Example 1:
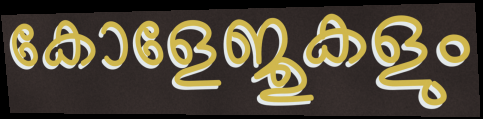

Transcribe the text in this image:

കോളേജുകളും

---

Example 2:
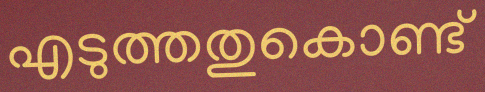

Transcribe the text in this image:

എടുത്തതുകൊണ്ട്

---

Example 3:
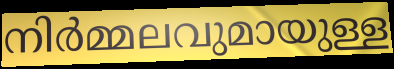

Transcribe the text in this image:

നിർമ്മലവുമായുള്ള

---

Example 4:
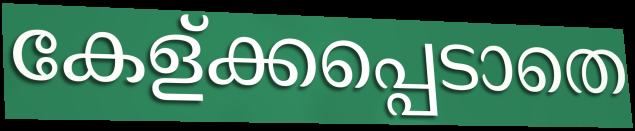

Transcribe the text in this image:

കേള്ക്കപ്പെടാതെ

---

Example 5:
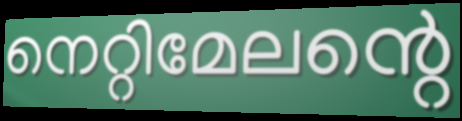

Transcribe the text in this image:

നെറ്റിമേലന്റെ